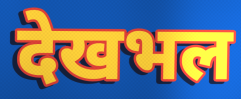
देखभल